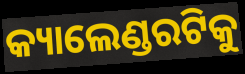
କ୍ୟାଲେଣ୍ଡରଟିକୁ